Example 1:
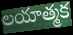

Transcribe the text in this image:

లయాత్మక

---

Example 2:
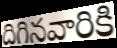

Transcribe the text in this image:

దిగినవారికి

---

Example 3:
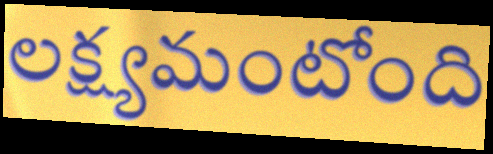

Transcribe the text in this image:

లక్ష్యమంటోంది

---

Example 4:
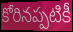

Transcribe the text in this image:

కోరినప్పటికీ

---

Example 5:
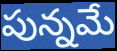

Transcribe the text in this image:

పున్నమే